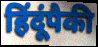
हिंदूंपैकी